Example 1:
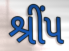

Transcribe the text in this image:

શ્રીંપ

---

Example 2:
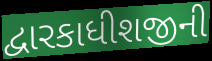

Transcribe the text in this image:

દ્વારકાધીશજીની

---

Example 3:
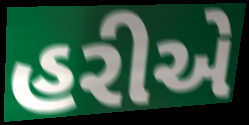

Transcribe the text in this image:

હરીએ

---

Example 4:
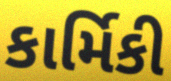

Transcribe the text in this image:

કાર્મિકી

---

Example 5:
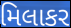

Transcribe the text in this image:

મિલાકર